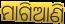
ମାଗିଆଣି